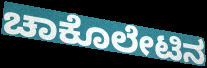
ಚಾಕೊಲೇಟಿನ